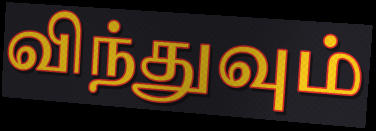
விந்துவும்